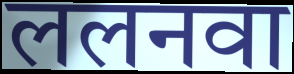
ललनवा